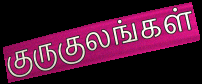
குருகுலங்கள்